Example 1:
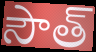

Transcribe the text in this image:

సౌత్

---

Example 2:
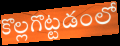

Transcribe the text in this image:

కొల్లగొట్టడంలో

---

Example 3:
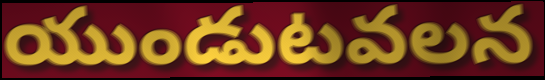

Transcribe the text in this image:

యుండుటవలన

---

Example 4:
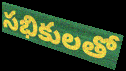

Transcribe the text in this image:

సభికులతో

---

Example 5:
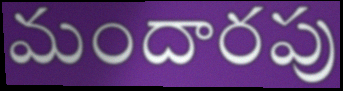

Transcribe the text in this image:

మందారపు